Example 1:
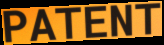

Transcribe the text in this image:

PATENT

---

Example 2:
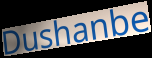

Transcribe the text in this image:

Dushanbe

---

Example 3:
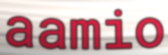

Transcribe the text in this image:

aamio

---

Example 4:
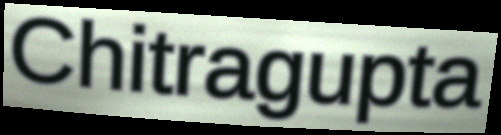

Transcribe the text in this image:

Chitragupta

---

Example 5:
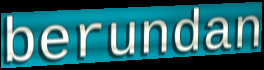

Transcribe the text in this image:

berundan